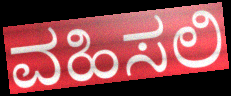
ವಹಿಸಲಿ